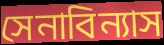
সেনাবিন্যাস